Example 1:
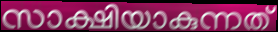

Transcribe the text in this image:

സാക്ഷിയാകുന്നത്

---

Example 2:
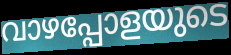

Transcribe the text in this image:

വാഴപ്പോളയുടെ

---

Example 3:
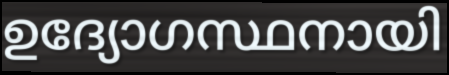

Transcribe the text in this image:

ഉദ്യോഗസ്ഥനായി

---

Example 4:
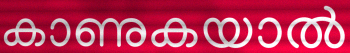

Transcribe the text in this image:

കാണുകയാൽ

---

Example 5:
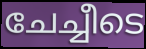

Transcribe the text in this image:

ചേച്ചീടെ